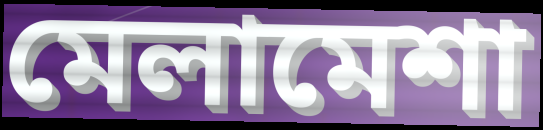
মেলামেশা